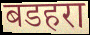
बडहरा